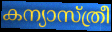
കന്യാസ്ത്രീ